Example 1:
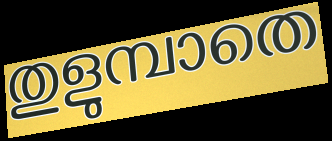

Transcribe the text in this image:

തുളുമ്പാതെ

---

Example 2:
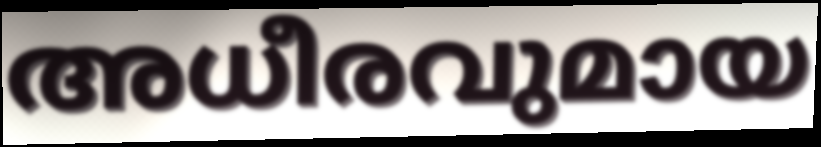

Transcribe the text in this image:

അധീരവുമായ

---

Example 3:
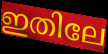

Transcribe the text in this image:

ഇതിലേ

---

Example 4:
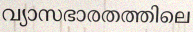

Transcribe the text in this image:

വ്യാസഭാരതത്തിലെ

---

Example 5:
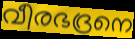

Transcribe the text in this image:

വീരഭദ്രനെ